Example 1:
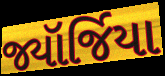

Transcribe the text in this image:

જ્યૉર્જિયા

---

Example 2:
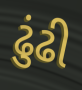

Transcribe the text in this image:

ઢુંઢી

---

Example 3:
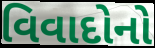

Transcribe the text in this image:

વિવાદોનો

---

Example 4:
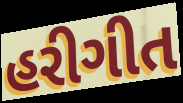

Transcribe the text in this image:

હરીગીત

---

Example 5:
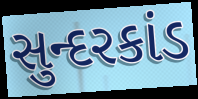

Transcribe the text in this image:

સુન્દરકાંડ